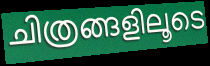
ചിത്രങ്ങളിലൂടെ